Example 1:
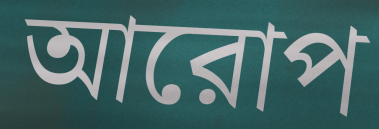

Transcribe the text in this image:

আরোপ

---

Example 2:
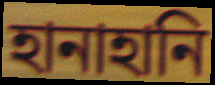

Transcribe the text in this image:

হানাহানি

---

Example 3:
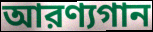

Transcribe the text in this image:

আরণ্যগান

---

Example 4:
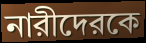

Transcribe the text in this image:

নারীদেরকে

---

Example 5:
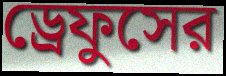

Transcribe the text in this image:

ড্রেফুসের